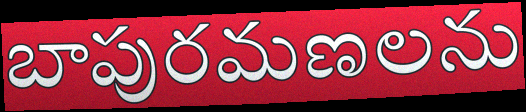
బాపురమణలను